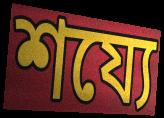
শয্যে